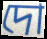
দো